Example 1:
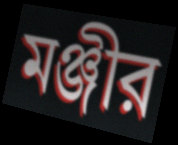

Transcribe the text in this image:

মঞ্জীর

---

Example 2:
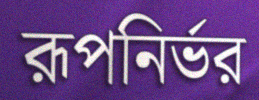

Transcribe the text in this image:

রূপনির্ভর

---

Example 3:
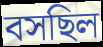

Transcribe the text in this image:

বসছিল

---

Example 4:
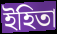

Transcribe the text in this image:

ইহিতা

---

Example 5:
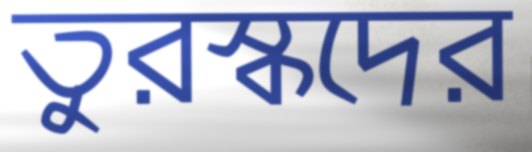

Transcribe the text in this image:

তুরস্কদের